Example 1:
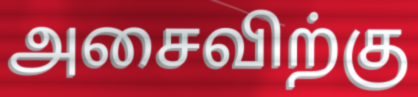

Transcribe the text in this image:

அசைவிற்கு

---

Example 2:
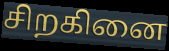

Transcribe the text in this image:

சிறகினை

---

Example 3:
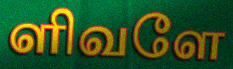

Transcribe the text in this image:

ளிவளே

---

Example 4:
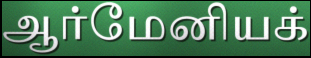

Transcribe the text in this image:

ஆர்மேனியக்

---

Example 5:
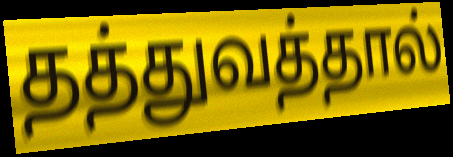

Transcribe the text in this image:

தத்துவத்தால்